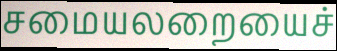
சமையலறையைச்